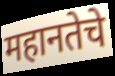
महानतेचे